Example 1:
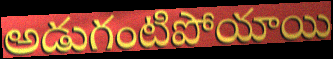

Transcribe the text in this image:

అడుగంటిపోయాయి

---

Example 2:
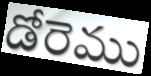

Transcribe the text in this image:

డోరెము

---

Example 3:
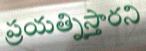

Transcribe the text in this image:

ప్రయత్నిస్తారని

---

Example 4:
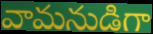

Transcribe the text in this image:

వామనుడిగా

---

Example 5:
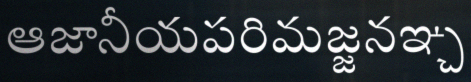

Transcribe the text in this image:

ఆజానీయపరిమజ్జనఞ్చ